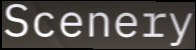
Scenery